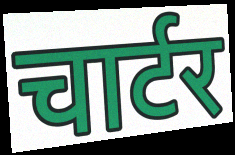
चार्टर